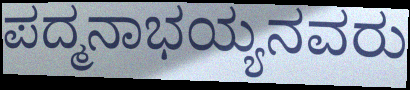
ಪದ್ಮನಾಭಯ್ಯನವರು